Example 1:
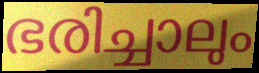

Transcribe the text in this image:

ഭരിച്ചാലും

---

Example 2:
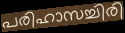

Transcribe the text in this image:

പരിഹാസച്ചിരി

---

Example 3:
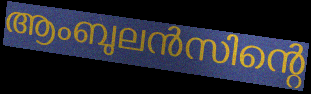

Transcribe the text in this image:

ആംബുലൻസിന്റെ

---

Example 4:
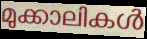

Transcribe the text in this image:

മുക്കാലികൾ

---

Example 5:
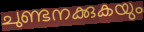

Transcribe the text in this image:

ചുണ്ടനക്കുകയും